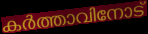
കർത്താവിനോട്